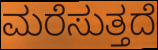
ಮರೆಸುತ್ತದೆ